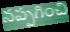
నప్పగించి